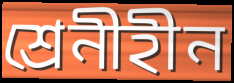
শ্রেনীহীন